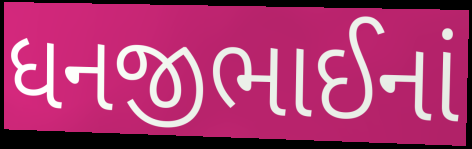
ધનજીભાઈનાં